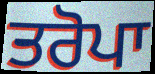
ਤਰੋਪਾ